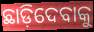
ଛାଡ଼ିଦେବାକୁ